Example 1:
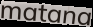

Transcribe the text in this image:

matana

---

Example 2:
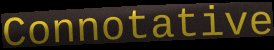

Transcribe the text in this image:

Connotative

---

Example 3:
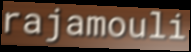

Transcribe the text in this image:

rajamouli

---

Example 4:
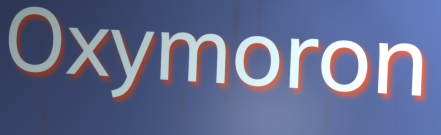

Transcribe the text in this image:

Oxymoron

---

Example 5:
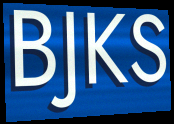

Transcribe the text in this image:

BJKS